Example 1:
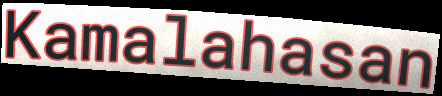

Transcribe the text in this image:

Kamalahasan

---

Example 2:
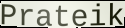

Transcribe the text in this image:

Prateik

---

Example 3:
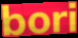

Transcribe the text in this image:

bori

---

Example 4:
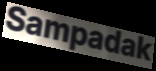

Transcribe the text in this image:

Sampadak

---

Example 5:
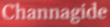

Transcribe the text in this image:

Channagide